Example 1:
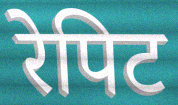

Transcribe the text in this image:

रेपिट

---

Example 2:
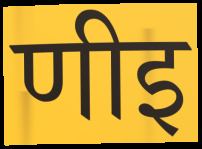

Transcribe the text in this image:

णीइ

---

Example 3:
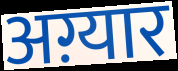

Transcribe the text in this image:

अग़्यार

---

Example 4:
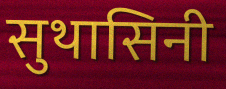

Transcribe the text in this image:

सुथासिनी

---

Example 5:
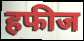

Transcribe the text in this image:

हफीज